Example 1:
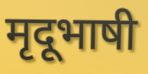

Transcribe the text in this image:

मृदूभाषी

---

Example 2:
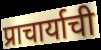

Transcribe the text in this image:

प्राचार्याची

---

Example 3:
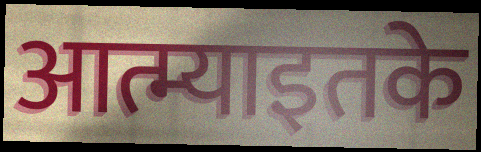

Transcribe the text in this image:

आत्म्याइतके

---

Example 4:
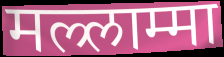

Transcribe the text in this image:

मल्लाम्मा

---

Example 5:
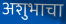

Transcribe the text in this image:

अशुभाचा